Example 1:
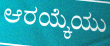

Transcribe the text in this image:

ಆರಯ್ಕೆಯು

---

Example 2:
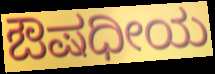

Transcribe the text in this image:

ಔಷಧೀಯ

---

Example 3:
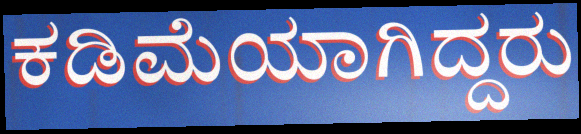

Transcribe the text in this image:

ಕಡಿಮೆಯಾಗಿದ್ದರು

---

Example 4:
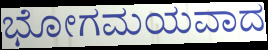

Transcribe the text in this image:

ಭೋಗಮಯವಾದ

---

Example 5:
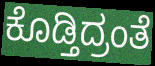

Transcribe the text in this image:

ಕೊಡ್ತಿದ್ರಂತೆ